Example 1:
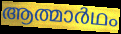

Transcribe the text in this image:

ആത്മാർഥം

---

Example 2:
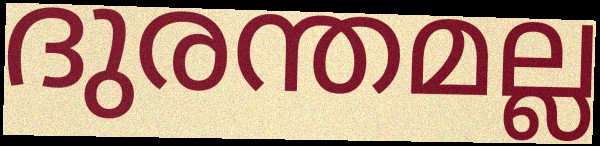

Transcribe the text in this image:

ദുരന്തമല്ല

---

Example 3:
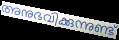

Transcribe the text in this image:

അനുഭവിക്കുന്നുണ്ട്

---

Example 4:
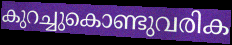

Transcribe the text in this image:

കുറച്ചുകൊണ്ടുവരിക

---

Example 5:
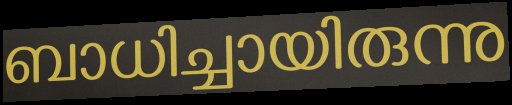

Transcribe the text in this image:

ബാധിച്ചായിരുന്നു